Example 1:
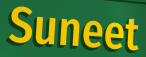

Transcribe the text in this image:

Suneet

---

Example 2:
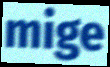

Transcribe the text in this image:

mige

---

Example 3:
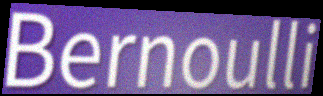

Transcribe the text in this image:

Bernoulli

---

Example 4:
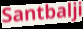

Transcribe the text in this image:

Santbalji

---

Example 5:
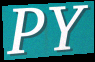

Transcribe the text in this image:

PY